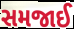
સમજાઈ